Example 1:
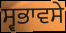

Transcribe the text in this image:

ਸ੍ਵਭਾਵਸੇ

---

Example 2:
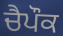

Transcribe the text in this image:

ਚੈਪੌਕ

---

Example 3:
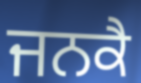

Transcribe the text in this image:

ਜਨਕੈ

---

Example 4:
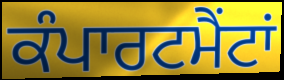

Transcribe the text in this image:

ਕੰਪਾਰਟਮੈਂਟਾਂ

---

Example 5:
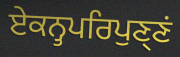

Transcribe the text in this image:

ਏਕਨ੍ਤਪਰਿਪੁਣ੍ਣਂ